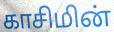
காசிமின்